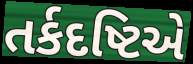
તર્કદષ્ટિએ